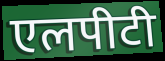
एलपीटी